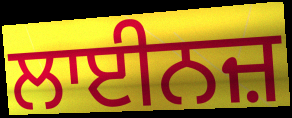
ਲਾਈਨਜ਼